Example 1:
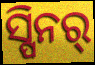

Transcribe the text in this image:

ସ୍ପିନର୍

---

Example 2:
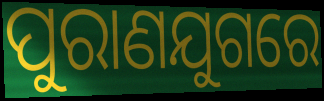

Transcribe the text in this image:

ପୁରାଣଯୁଗରେ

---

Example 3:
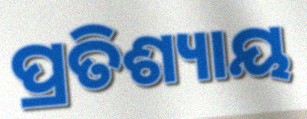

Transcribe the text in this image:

ପ୍ରତିଶ୍ୟାୟ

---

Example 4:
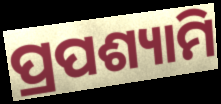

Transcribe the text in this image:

ପ୍ରପଶ୍ୟାମି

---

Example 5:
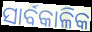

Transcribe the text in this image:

ସାର୍ବକାଳିକ